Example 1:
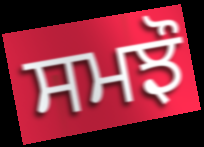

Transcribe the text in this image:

ਸਮਝੌ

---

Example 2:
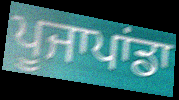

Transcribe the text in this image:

ਪੂਜਾਪਾਂਡਾ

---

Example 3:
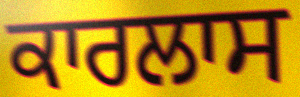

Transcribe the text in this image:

ਕਾਰਲਾਸ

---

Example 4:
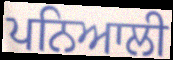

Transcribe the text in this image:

ਪਨਿਆਲੀ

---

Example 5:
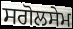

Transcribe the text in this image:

ਸਗੋਲਸੇਮ